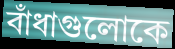
বাঁধাগুলোকে